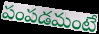
పంపడమంటే